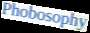
Phobosophy